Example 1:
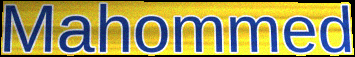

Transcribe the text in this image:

Mahommed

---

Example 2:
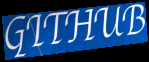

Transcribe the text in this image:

GITHUB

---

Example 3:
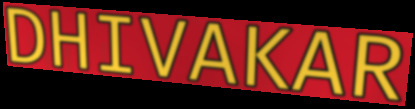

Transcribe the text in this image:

DHIVAKAR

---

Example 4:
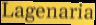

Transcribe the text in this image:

Lagenaria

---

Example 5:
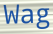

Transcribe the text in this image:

Wag